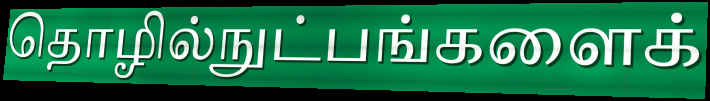
தொழில்நுட்பங்களைக்